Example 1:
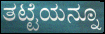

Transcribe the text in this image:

ತಟ್ಟೆಯನ್ನೂ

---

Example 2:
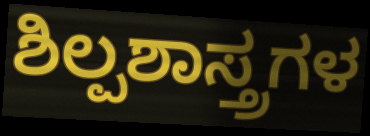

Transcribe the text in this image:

ಶಿಲ್ಪಶಾಸ್ತ್ರಗಳ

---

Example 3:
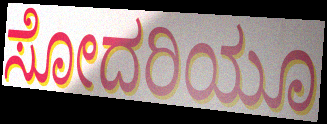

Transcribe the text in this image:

ಸೋದರಿಯೂ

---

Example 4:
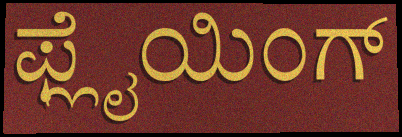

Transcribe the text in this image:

ಫ್ಲೈಯಿಂಗ್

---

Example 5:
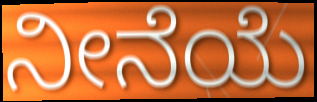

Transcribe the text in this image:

ನೀನೆಯೆ